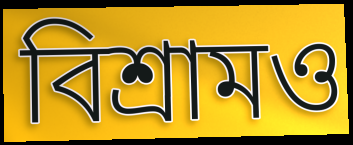
বিশ্রামও